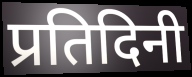
प्रतिदिनी